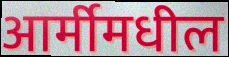
आर्मीमधील